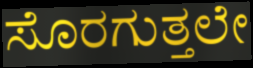
ಸೊರಗುತ್ತಲೇ